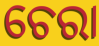
ଚେରା